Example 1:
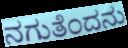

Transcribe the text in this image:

ನಗುತೆಂದನು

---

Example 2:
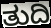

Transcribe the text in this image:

ತುದಿ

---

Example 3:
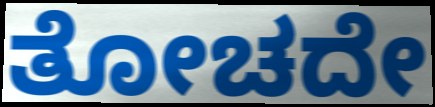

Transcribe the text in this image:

ತೋಚದೇ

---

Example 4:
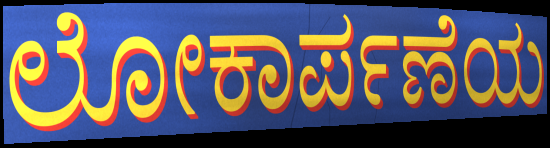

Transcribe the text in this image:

ಲೋಕಾರ್ಪಣೆಯ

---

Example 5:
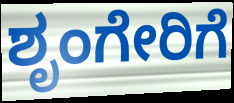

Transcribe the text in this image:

ಶೃಂಗೇರಿಗೆ